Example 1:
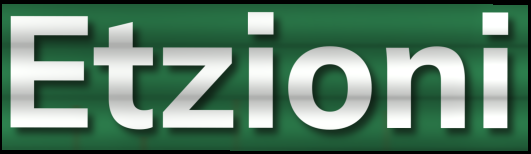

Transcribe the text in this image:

Etzioni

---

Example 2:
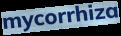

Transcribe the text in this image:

mycorrhiza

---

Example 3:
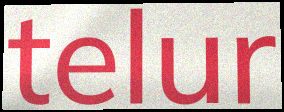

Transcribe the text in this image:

telur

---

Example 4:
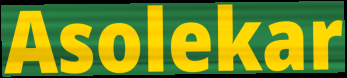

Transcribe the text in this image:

Asolekar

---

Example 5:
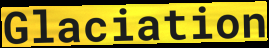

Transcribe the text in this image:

Glaciation